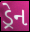
ડ્રેન